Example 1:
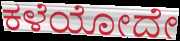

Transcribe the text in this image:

ಕಳೆಯೋದೇ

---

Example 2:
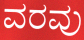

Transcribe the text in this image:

ವರವು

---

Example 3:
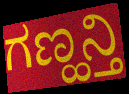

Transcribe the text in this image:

ಗಣ್ಹನ್ತಿ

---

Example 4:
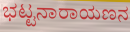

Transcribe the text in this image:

ಭಟ್ಟನಾರಾಯಣನ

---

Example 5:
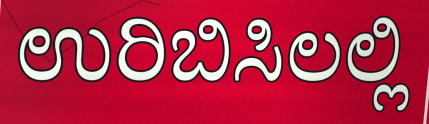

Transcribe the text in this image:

ಉರಿಬಿಸಿಲಲ್ಲಿ